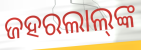
ଜହରଲାଲ୍‌ଙ୍କ